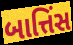
બાત્તિંસ